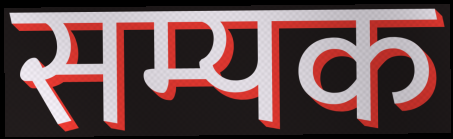
सम्‍यक